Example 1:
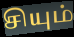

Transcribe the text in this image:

சியும்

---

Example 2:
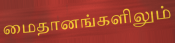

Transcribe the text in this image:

மைதானங்களிலும்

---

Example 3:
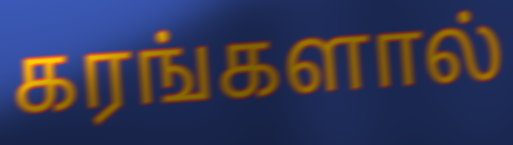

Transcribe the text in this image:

கரங்களால்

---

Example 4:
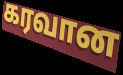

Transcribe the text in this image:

கரவான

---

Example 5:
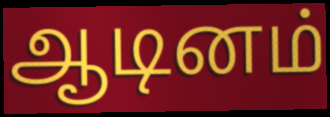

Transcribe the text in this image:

ஆடினம்